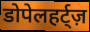
डोपेलहर्ट्ज़